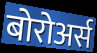
बोरोअर्स